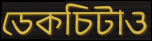
ডেকচিটাও